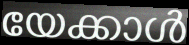
യേക്കാൾ